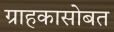
ग्राहकासोबत